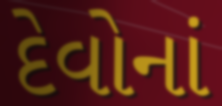
દેવોનાં